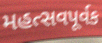
મહત્સવપૂર્વક